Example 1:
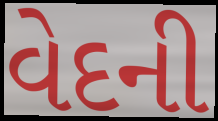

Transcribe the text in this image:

વેદની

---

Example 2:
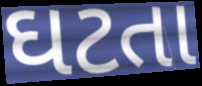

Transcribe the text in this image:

ઘટતા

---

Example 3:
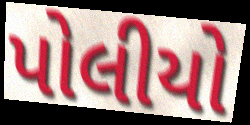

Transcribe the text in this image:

પોલીયો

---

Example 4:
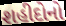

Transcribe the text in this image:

શહીદોનો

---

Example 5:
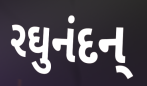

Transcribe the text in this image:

રઘુનંદન્